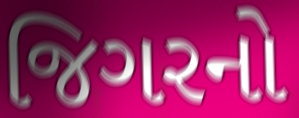
જિગરનો